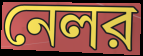
নেলর